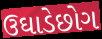
ઉઘાડેછોગ